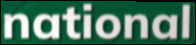
national